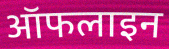
ऑफलाइन